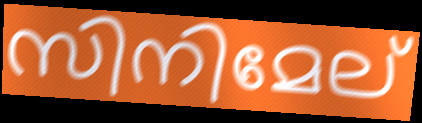
സിനിമേല്